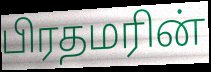
பிரதமரின்